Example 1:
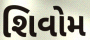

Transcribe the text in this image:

શિવોમ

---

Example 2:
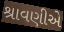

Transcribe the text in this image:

શ્રાવણીએ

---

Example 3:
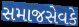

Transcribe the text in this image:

સમાજસેવકે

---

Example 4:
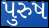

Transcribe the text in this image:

પુરુષ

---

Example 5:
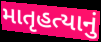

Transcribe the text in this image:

માતૃહત્યાનું